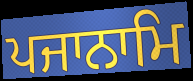
ਪਜਾਨਾਮਿ